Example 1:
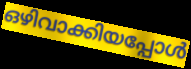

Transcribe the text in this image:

ഒഴിവാക്കിയപ്പോൾ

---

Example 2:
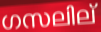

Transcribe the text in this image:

ഗസലില്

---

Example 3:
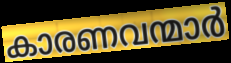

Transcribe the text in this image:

കാരണവന്മാർ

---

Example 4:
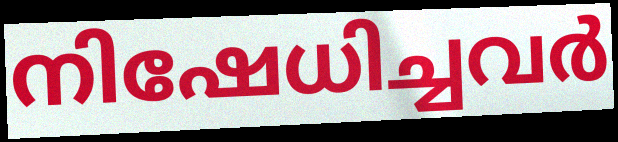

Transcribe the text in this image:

നിഷേധിച്ചവർ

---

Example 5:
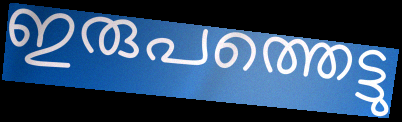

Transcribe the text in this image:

ഇരുപത്തെട്ടു